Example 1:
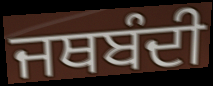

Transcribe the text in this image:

ਜਥਬੰਦੀ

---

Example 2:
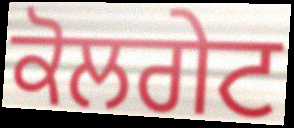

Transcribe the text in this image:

ਕੋਲਗੇਟ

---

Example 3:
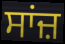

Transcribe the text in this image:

ਸਾਂਜ਼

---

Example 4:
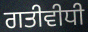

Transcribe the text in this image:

ਗਤੀਵੀਧੀ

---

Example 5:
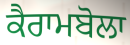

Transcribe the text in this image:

ਕੈਰਾਮਬੋਲਾ